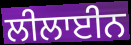
ਲੀਲਾਈਨ